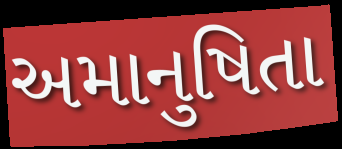
અમાનુષિતા